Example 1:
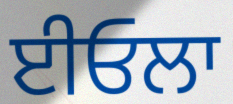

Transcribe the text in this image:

ਈਓਲਾ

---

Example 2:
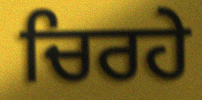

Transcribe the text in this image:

ਚਿਰਹੇ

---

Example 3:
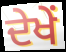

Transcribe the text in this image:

ਦੇਖੇਂ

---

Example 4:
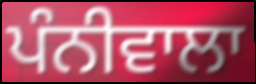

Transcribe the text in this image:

ਪੰਨੀਵਾਲਾ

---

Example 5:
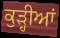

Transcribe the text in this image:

ਕੁੜ੍ਹੀਆਂ